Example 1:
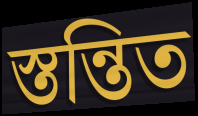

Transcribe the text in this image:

স্তন্তিত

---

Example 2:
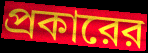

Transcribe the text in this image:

প্রকারের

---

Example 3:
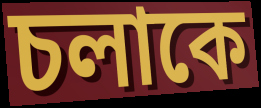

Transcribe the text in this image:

চলাকে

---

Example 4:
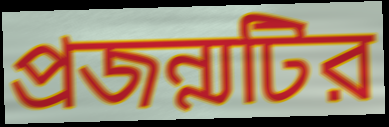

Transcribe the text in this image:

প্রজন্মটির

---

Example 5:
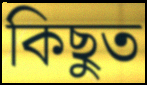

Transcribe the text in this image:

কিছুত